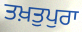
ਤਖ਼ਤੁਪੁਰਾ